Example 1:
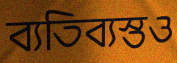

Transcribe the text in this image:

ব্যতিব্যস্তও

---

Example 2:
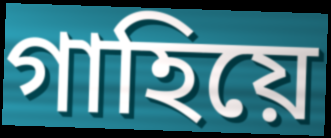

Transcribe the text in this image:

গাহিয়ে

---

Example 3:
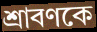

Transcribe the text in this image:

শ্রাবণকে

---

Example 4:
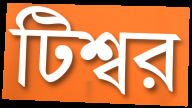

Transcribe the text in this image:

টিশ্বর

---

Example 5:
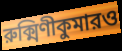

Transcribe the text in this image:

রুক্মিণীকুমারও